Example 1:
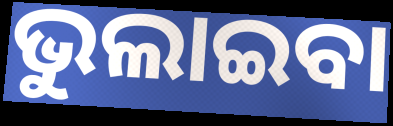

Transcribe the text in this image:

ଭୁଲାଇବା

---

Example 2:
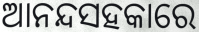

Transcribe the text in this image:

ଆନନ୍ଦସହକାରେ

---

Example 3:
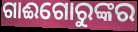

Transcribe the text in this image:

ଗାଈଗୋରୁଙ୍କର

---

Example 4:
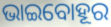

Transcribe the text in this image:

ଭାଇବୋହୂର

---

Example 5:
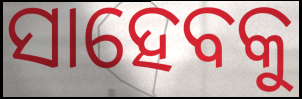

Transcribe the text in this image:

ସାହେବକୁ